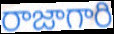
రాజాగారి